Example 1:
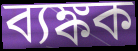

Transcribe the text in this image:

ব্যঙ্কক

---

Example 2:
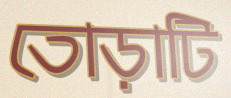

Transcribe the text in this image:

তোড়াটি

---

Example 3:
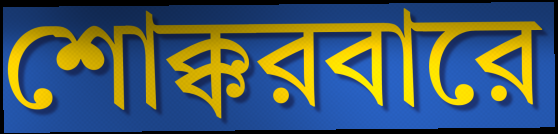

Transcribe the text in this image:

শোক্করবারে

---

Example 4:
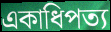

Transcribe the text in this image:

একাধিপত্য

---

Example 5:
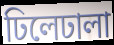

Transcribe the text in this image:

ঢিলেঢালা